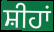
ਸ਼ੀਹਾਂ